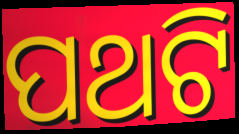
ପଥଟି